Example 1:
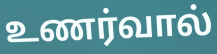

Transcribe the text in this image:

உணர்வால்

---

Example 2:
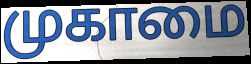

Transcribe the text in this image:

முகாமை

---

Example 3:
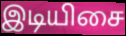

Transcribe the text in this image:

இடியிசை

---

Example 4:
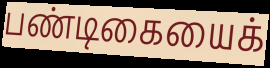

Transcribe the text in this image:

பண்டிகையைக்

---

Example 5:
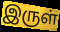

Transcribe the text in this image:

இருள்